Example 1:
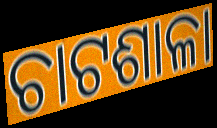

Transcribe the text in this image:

ଚାଟଶାଳା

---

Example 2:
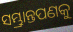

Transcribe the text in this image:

ସମ୍ଭ୍ରାନ୍ତପଣକୁ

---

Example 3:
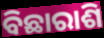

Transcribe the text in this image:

ବିଛାରାଶି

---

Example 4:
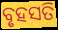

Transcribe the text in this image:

ବୃହସତି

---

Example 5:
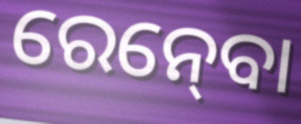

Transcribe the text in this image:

ରେନ୍‍ବୋ